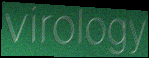
virology